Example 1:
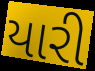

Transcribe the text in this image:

યારી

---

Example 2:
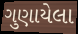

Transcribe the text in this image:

ગુણાયેલા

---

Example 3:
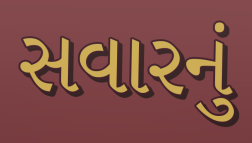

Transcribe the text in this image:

સવારનું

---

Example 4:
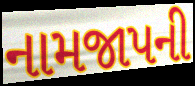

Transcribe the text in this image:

નામજાપની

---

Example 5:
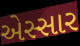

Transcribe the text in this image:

એસ્સાર